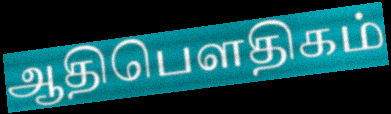
ஆதிபௌதிகம்